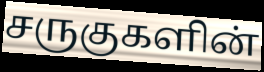
சருகுகளின்